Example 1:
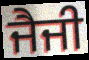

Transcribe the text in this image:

ਜੈਜੀ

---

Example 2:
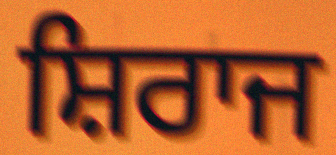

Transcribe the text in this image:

ਸ਼ਿਰਾਜ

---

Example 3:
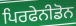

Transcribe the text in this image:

ਪਿਰਫੇਨੀਡੋਨ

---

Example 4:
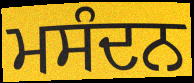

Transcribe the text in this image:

ਮਸੰਦਨ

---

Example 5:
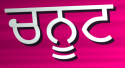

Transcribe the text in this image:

ਚਨੂਟ